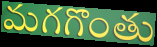
మగగొంతు